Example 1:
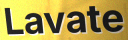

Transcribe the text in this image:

Lavate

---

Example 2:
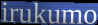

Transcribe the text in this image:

irukumo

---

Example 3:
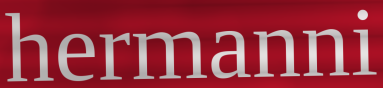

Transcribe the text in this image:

hermanni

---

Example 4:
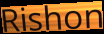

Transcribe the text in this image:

Rishon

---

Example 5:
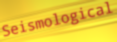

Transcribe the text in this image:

Seismological